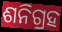
ଶନିଗ୍ରହ